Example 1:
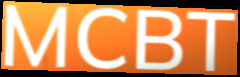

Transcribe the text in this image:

MCBT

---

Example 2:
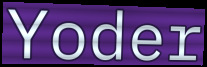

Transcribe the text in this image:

Yoder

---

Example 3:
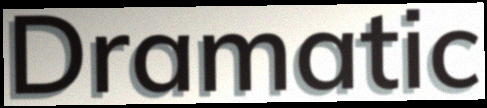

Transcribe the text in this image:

Dramatic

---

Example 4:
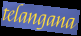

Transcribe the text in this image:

telangana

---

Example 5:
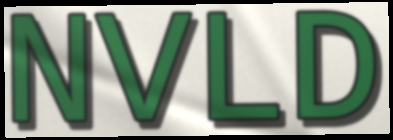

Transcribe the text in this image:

NVLD